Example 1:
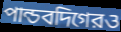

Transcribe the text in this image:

পান্ডবদিগেরও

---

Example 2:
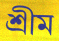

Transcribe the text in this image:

শ্রীম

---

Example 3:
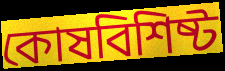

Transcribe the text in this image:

কোষবিশিষ্ট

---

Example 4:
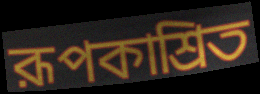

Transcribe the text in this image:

রূপকাশ্রিত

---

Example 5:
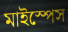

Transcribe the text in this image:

মাইস্পেস